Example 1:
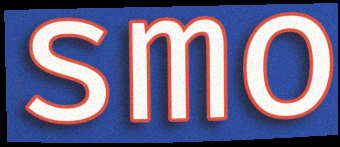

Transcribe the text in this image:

smo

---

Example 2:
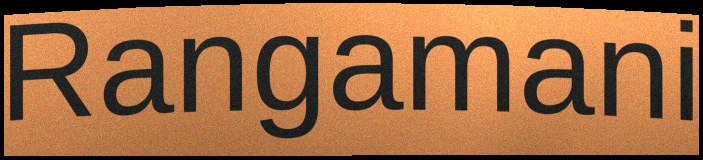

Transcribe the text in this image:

Rangamani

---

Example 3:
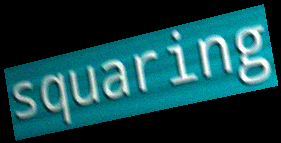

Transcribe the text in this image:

squaring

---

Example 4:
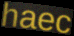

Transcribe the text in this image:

haec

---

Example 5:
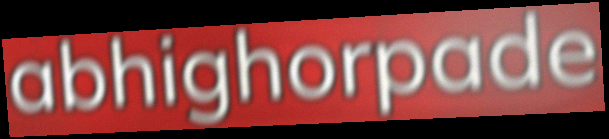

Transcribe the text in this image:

abhighorpade